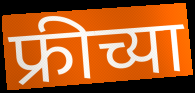
फ्रीच्या